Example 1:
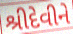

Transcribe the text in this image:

શ્રીદેવીને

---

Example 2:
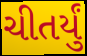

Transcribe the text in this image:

ચીતર્યું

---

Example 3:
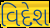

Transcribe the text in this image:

વિદેશ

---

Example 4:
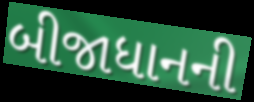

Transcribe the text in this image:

બીજાધાનની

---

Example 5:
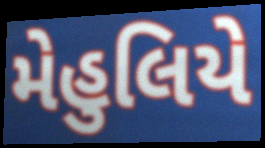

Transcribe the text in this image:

મેહુલિયે